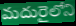
మదురైలోని